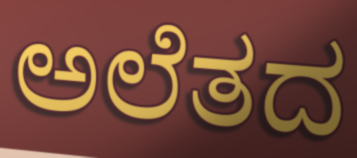
ಅಲೆತದ